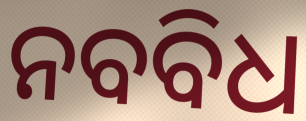
ନବବିଧ